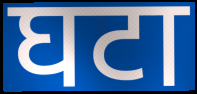
घटा